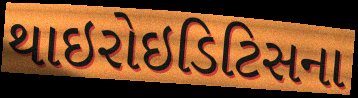
થાઇરોઇડિટિસના